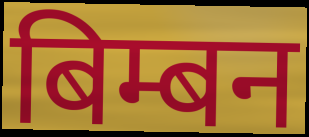
बिम्बन